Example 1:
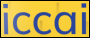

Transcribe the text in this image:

iccai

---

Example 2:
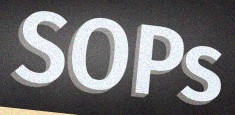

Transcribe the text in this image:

SOPs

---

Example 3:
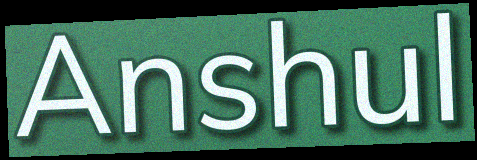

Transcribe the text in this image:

Anshul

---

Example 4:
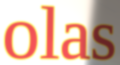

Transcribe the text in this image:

olas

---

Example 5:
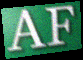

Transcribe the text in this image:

AF